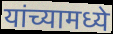
यांच्यामध्ये